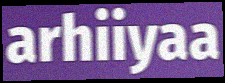
arhiiyaa